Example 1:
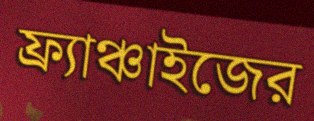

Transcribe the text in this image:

ফ্র্যাঞ্চাইজের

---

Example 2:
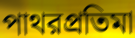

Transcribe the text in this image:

পাথরপ্রতিমা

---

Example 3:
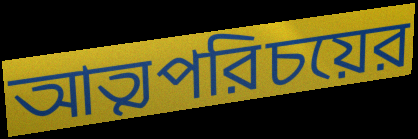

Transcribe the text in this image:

আত্মপরিচয়ের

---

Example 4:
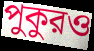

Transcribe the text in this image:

পুকুরও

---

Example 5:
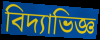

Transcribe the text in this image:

বিদ্যাভিজ্ঞ